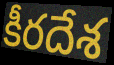
కీరదేశ